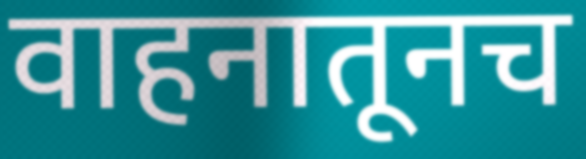
वाहनातूनच